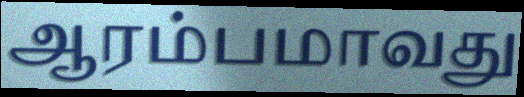
ஆரம்பமாவது